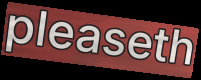
pleaseth